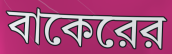
বাকেরের